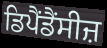
ਡਿਪੈਂਡੈਂਸੀਜ਼